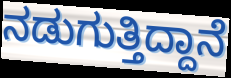
ನಡುಗುತ್ತಿದ್ದಾನೆ